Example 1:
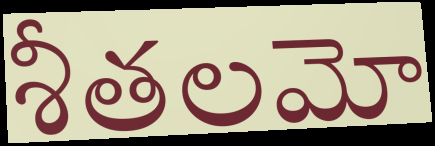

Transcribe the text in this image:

శీతలమో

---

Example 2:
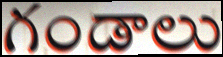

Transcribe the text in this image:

గండాలు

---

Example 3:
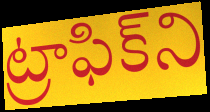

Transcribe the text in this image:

ట్రాఫిక్‌ని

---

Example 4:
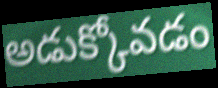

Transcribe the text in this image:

అడుక్కోవడం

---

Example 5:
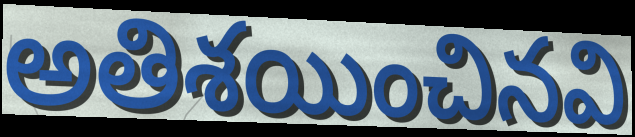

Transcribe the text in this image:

అతిశయించినవి